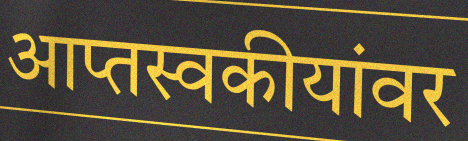
आप्तस्वकीयांवर